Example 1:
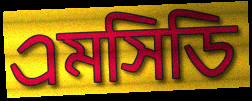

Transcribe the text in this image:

এমসিডি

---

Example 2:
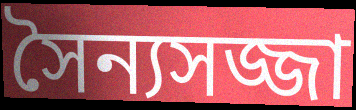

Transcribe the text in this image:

সৈন্যসজ্জা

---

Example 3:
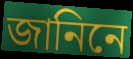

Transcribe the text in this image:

জানিনে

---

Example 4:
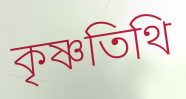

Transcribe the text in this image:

কৃষ্ণতিথি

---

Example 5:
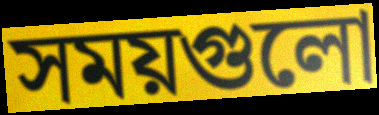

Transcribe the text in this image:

সময়গুলো